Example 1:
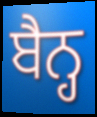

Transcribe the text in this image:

ਬੈਨ੍ਹ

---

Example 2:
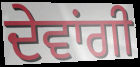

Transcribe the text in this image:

ਦੇਵਾਂਗੀ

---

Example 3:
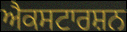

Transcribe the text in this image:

ਐਕਸਟਾਰਸ਼ਨ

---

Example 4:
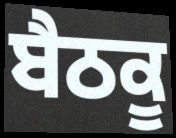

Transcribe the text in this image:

ਬੈਠਕੂ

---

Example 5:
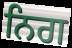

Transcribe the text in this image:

ਨਿਗ